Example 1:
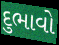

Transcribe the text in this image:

દુભાવો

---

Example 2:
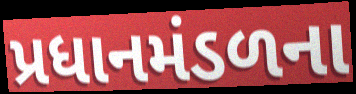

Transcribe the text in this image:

પ્રધાનમંડળના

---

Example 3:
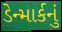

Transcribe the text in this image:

ડેન્માર્કનું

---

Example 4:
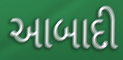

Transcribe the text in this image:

આબાદી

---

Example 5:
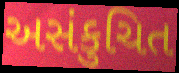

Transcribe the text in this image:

અસંકુચિત